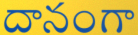
దానంగా